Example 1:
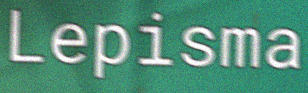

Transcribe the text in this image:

Lepisma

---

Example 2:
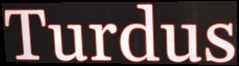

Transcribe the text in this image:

Turdus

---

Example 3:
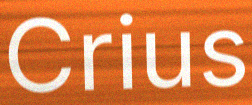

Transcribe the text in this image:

Crius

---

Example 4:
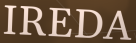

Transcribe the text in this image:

IREDA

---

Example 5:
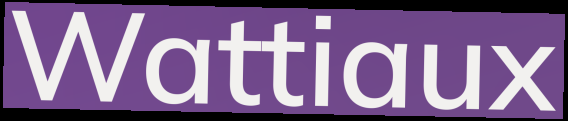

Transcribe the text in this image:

Wattiaux